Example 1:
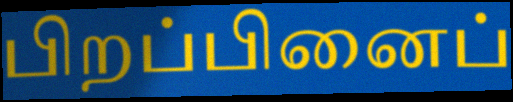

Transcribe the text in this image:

பிறப்பினைப்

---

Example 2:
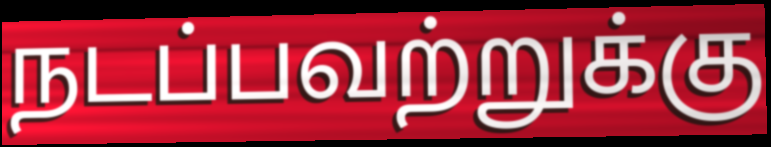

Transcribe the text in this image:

நடப்பவற்றுக்கு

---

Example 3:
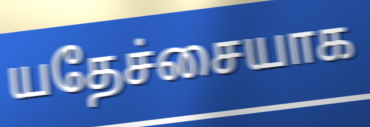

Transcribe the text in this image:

யதேச்சையாக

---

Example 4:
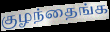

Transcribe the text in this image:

குழந்தைங்க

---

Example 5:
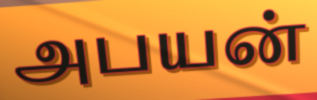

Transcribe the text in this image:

அபயன்